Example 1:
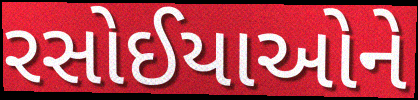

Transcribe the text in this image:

રસોઈયાઓને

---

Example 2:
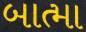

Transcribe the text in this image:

બાત્મા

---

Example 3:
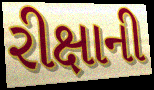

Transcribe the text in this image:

રીક્ષાની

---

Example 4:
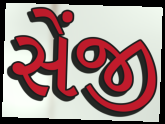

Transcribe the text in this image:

સેંજી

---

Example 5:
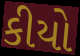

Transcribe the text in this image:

કીયો